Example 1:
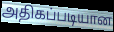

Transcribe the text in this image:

அதிகப்படியான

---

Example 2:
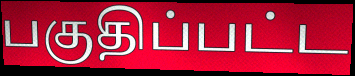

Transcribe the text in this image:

பகுதிப்பட்ட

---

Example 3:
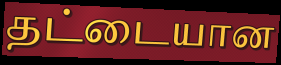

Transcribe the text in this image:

தட்டையான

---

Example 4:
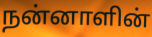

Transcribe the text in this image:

நன்னாளின்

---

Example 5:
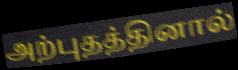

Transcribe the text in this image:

அற்புதத்தினால்